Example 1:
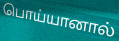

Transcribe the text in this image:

பொய்யானால்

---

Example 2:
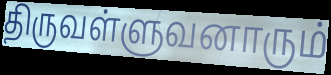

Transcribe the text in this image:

திருவள்ளுவனாரும்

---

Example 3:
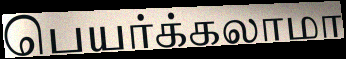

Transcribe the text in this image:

பெயர்க்கலாமா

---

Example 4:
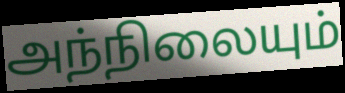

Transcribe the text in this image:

அந்நிலையும்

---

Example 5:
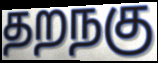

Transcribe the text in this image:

தறநகு